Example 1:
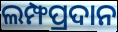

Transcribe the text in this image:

ଲମ୍ଫପ୍ରଦାନ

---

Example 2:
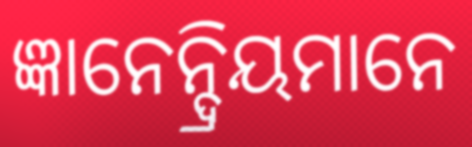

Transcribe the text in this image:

ଜ୍ଞାନେନ୍ଦ୍ରିୟମାନେ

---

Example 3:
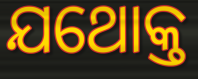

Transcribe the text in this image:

ଯଥୋକ୍ତ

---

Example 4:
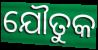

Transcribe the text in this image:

ଯୌତୁକ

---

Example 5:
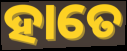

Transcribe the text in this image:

ହାତେ